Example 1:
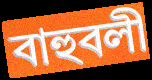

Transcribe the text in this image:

বাহুবলী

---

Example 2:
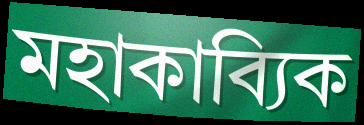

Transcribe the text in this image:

মহাকাব্যিক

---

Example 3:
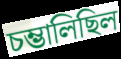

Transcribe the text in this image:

চম্ভালিছিল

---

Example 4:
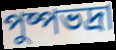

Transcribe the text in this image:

পুষ্পভদ্ৰা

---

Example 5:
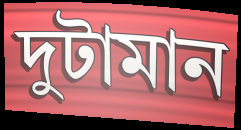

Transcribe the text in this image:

দুটামান